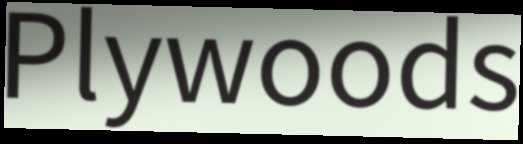
Plywoods